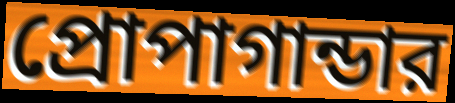
প্রোপাগান্ডার